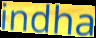
indha